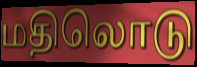
மதிலொடு